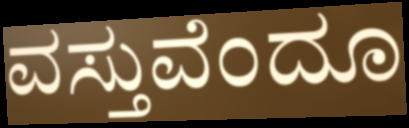
ವಸ್ತುವೆಂದೂ